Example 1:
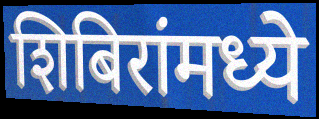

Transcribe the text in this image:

शिबिरांमध्ये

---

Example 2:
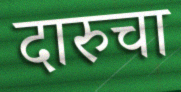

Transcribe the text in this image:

दारुचा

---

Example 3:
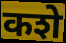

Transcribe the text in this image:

कशे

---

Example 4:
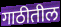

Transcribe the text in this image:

गाठीतील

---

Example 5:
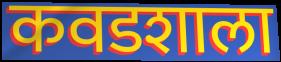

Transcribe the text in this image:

कवडशाला